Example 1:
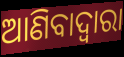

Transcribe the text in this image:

ଆଣିବାଦ୍ୱାରା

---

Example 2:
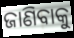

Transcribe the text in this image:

ଜାଣିବାକୁ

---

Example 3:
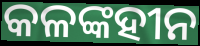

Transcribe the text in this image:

କଳଙ୍କହୀନ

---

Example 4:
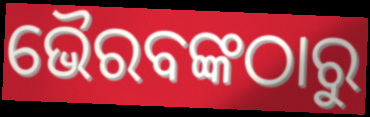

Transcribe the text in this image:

ଭୈରବଙ୍କଠାରୁ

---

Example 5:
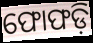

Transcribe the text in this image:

ଫୋଫଡ଼ି